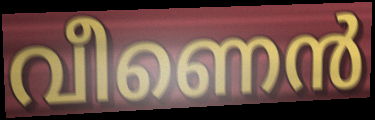
വീണെൻ